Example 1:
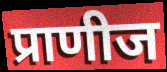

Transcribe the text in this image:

प्राणीज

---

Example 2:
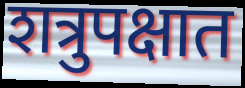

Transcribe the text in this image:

शत्रुपक्षात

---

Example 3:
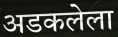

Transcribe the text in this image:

अडकलेला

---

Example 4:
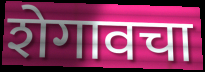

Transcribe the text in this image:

शेगावचा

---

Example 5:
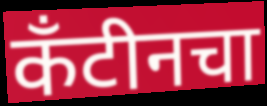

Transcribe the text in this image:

कँटीनचा